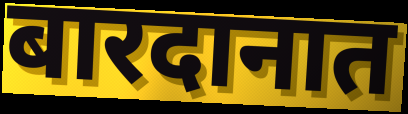
बारदानात